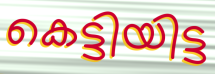
കെട്ടിയിട്ട